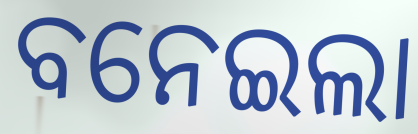
ବନେଇଲା